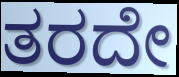
ತರದೇ